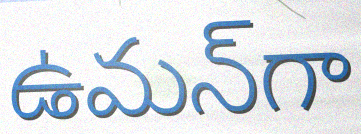
ఉమన్‌గా